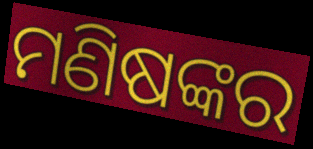
ମଣିଷଙ୍କର